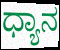
ಧ್ಯಾನ